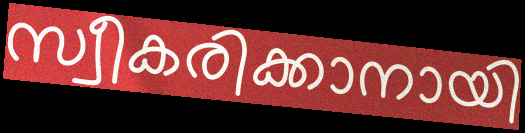
സ്വീകരിക്കാനായി